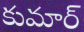
కుమార్